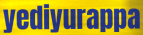
yediyurappa